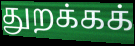
துறக்கக்